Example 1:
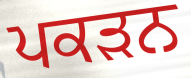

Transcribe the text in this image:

ਪਕੜਨ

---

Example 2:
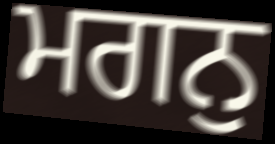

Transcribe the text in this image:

ਮਗਨੁ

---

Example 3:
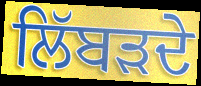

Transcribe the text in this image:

ਲਿੱਬੜਦੇ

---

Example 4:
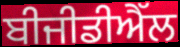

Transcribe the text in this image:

ਬੀਜੀਡੀਐੱਲ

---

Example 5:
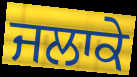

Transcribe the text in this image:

ਜਲਾਕੇ